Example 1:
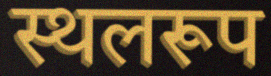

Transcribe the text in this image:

स्थलरूप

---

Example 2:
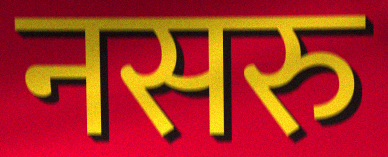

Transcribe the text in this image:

नसरु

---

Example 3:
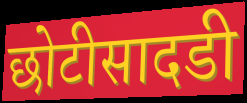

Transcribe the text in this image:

छोटीसादडी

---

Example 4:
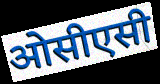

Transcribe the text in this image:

ओसीएसी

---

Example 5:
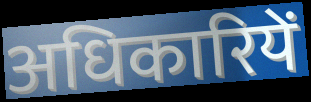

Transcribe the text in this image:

अधिकारियें